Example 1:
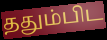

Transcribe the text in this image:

ததும்பிட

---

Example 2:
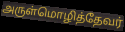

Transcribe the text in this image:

அருள்மொழித்தேவர்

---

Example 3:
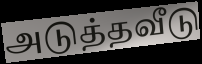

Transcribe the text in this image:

அடுத்தவீடு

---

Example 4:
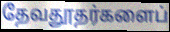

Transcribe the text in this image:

தேவதூதர்களைப்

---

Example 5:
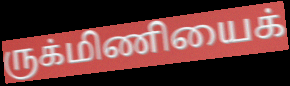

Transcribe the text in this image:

ருக்மிணியைக்